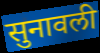
सुनावली